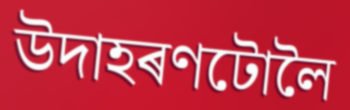
উদাহৰণটোলৈ